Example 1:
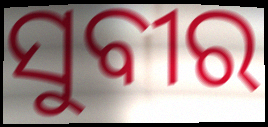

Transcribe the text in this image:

ସୁବୀର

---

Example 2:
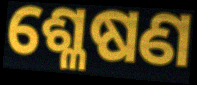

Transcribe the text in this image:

ଶ୍ଳେଷଣ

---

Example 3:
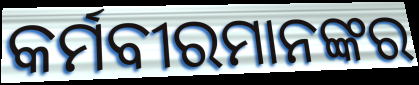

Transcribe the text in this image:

କର୍ମବୀରମାନଙ୍କର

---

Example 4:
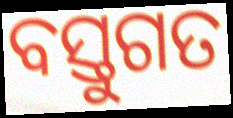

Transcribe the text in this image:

ବସ୍ତୁଗତ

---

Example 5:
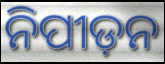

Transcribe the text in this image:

ନିପୀଡ଼ନ